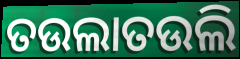
ତଉଲାତଉଲି